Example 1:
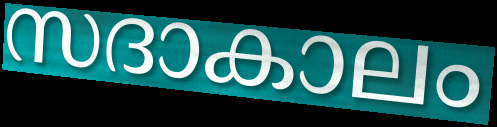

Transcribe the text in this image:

സദാകാലം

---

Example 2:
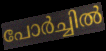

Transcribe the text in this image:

പോർച്ചിൽ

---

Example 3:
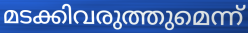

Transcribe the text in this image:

മടക്കിവരുത്തുമെന്ന്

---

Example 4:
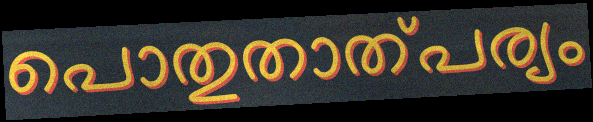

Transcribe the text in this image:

പൊതുതാത്പര്യം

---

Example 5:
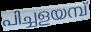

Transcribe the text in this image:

പിച്ചളയമ്പ്